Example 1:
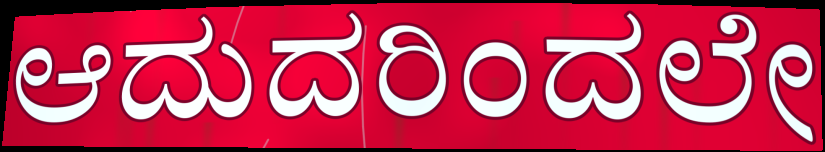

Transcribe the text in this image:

ಆದುದರಿಂದಲೇ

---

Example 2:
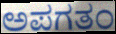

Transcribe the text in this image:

ಅಪಗತಂ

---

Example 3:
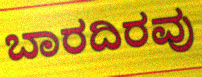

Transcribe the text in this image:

ಬಾರದಿರವು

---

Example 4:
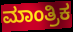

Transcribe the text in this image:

ಮಾಂತ್ರಿಕ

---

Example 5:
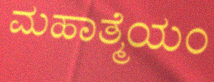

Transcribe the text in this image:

ಮಹಾತ್ಮೆಯಂ